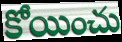
కోయించు